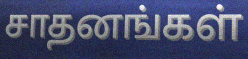
சாதனங்கள்